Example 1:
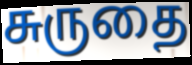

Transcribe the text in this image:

சுருதை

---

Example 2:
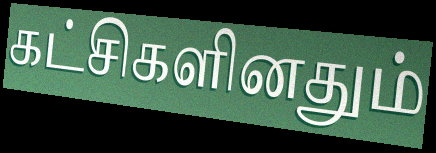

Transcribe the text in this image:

கட்சிகளினதும்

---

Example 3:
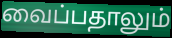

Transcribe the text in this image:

வைப்பதாலும்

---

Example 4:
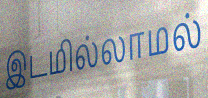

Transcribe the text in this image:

இடமில்லாமல்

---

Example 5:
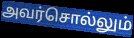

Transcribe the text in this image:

அவர்சொல்லும்